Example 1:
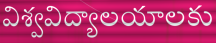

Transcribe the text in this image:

విశ్వవిద్యాలయాలకు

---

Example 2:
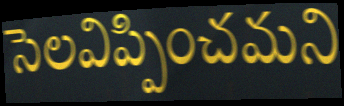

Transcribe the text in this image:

సెలవిప్పించమని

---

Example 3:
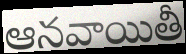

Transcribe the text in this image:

ఆనవాయితీ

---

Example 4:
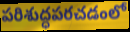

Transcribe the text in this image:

పరిశుద్ధపరచడంలో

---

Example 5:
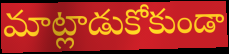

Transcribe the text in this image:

మాట్లాడుకోకుండా